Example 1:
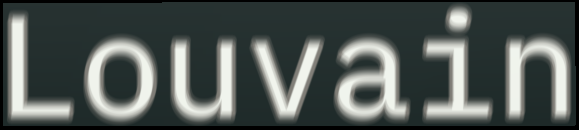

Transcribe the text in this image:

Louvain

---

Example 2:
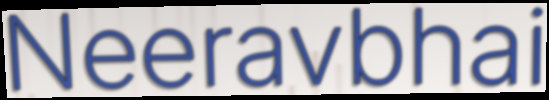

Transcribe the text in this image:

Neeravbhai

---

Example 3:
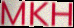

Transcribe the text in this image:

MKH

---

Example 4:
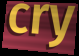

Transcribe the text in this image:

cry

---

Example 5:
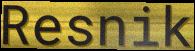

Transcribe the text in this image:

Resnik